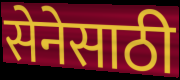
सेनेसाठी